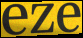
eze